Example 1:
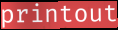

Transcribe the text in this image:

printout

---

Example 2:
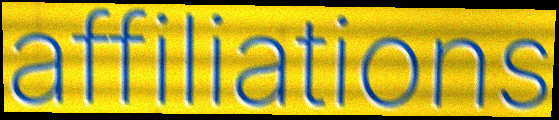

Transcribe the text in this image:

affiliations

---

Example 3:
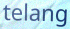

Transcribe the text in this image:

telang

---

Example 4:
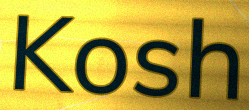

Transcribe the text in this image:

Kosh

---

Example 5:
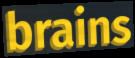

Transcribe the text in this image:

brains